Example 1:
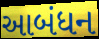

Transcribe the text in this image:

આબંધન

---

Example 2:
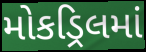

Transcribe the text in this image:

મોકડ્રિલમાં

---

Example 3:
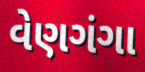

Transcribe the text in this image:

વેણગંગા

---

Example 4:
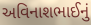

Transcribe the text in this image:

અવિનાશભાઈનું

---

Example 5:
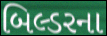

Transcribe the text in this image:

બિલ્ડરના